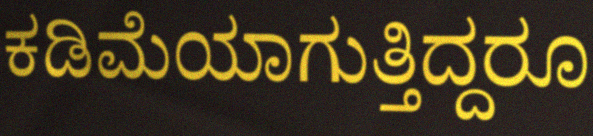
ಕಡಿಮೆಯಾಗುತ್ತಿದ್ದರೂ